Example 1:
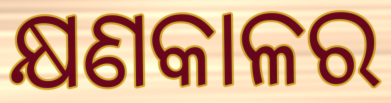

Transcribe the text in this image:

କ୍ଷଣକାଳର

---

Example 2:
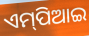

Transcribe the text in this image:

ଏମ୍‌ପିଆଇ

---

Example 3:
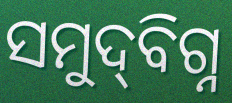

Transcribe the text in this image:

ସମୁଦ୍‌ବିଗ୍ନ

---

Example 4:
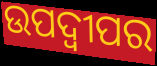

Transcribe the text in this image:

ଉପଦ୍ୱୀପର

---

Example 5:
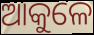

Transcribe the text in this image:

ଆକୁଳେ